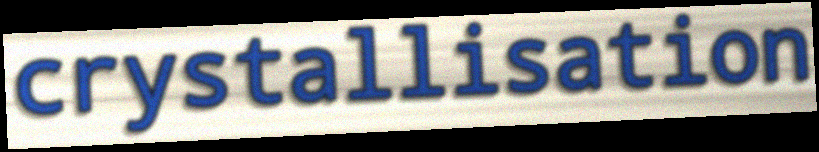
crystallisation